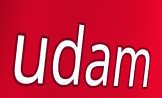
udam